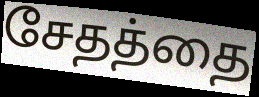
சேதத்தை